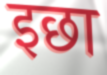
इछा